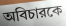
অবিচারকে